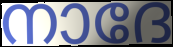
നാദേ